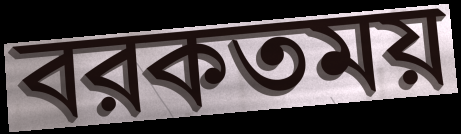
বরকতময়